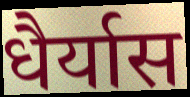
धैर्यास